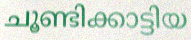
ചൂണ്ടിക്കാട്ടിയ